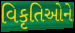
વિકૃતિઓને